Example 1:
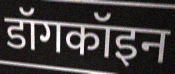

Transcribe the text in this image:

डॉगकॉइन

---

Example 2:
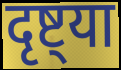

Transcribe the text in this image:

दृष्ट्या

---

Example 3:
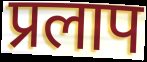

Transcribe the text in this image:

प्रलाप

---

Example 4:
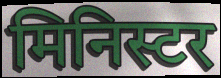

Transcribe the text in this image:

मिनिस्टर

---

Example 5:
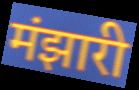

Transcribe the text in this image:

मंझारी